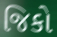
જિકો